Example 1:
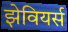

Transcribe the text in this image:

झेवियर्स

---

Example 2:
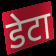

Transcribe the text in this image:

डेटा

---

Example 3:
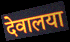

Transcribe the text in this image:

देवालया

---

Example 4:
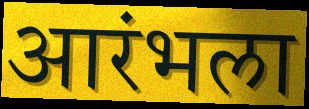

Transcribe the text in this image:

आरंभला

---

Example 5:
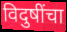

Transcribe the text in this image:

विदुषींचा